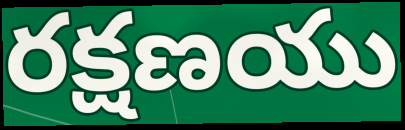
రక్షణయు